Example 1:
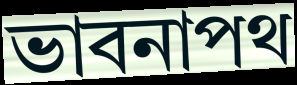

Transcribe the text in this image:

ভাবনাপথ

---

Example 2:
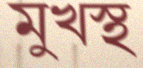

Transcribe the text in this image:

মুখস্থ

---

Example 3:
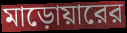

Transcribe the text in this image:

মাড়োয়ারের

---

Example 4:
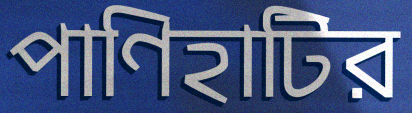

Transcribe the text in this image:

পাণিহাটির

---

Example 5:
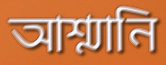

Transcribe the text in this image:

আশ্মানি